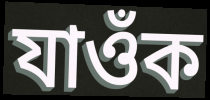
যাওঁক